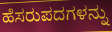
ಹೆಸರುಪದಗಳನ್ನು